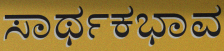
ಸಾರ್ಥಕಭಾವ